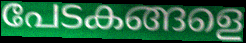
പേടകങ്ങളെ